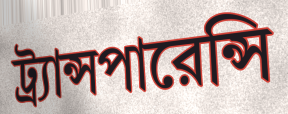
ট্র্যান্সপারেন্সি